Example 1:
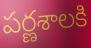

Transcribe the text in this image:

పర్ణశాలకి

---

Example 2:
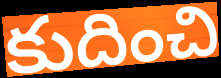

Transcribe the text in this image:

కుదించి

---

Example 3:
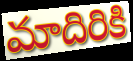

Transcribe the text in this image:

మాదిరికి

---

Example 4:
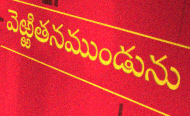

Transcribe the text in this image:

వెఱ్ఱితనముండును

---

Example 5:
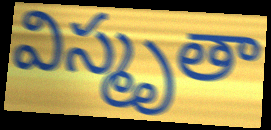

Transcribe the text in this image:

విస్మృతా